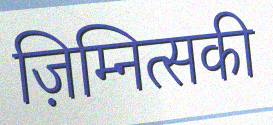
ज़िम्नित्सकी